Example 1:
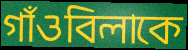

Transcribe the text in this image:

গাঁওবিলাকে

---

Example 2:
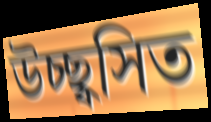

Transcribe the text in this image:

উচ্ছ্বসিত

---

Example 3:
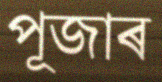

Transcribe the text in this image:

পূজাৰ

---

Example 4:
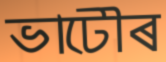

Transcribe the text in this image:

ভাটৌৰ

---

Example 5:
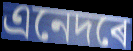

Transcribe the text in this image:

এনেদৰে